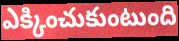
ఎక్కించుకుంటుంది